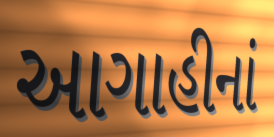
આગાહીનાં